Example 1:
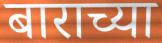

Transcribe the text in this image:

बाराच्या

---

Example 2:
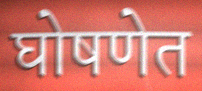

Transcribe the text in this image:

घोषणेत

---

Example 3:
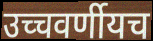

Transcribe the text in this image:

उच्चवर्णीयच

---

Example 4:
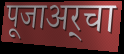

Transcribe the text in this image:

पूजाअर्चा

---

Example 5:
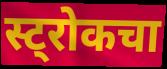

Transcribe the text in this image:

स्ट्रोकचा